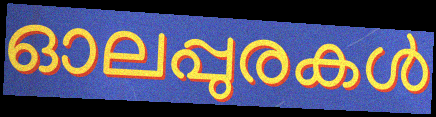
ഓലപ്പുരകൾ